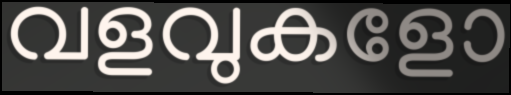
വളവുകളോ